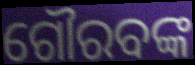
ଗୌରବଙ୍କ